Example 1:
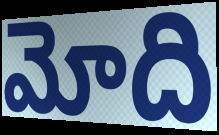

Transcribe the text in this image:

మోది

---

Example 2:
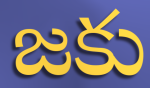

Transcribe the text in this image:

జకు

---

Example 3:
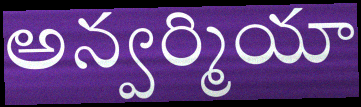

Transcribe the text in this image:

అన్వర్మియా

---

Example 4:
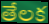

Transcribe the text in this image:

తేలక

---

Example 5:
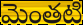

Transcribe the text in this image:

మెంతటి